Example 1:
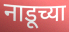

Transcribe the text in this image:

नाडूच्या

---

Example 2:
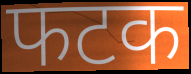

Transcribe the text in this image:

फटक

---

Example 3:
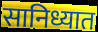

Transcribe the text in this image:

सानिध्यात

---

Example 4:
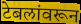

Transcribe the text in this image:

टेबलांवरून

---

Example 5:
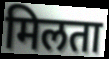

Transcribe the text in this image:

मिलता